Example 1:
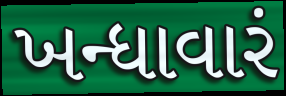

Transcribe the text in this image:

ખન્ધાવારં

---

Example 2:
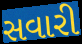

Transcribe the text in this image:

સવારી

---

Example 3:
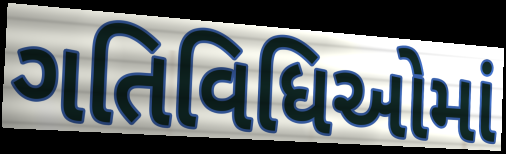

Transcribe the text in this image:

ગતિવિધિઓમાં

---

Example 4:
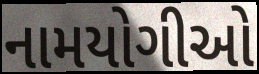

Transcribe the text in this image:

નામયોગીઓ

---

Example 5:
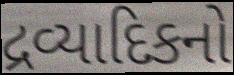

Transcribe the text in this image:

દ્રવ્યાદિકનો